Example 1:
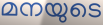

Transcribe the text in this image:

മനയുടെ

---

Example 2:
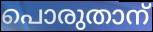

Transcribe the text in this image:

പൊരുതാന്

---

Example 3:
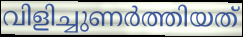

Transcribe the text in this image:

വിളിച്ചുണർത്തിയത്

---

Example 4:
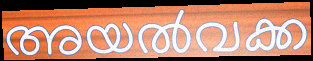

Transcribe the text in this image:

അയൽവക്ക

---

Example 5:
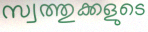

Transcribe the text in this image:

സ്വത്തുക്കളുടെ